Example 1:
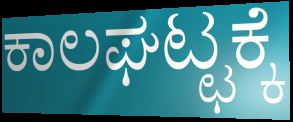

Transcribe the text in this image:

ಕಾಲಘಟ್ಟಕ್ಕೆ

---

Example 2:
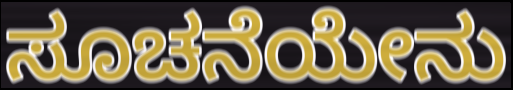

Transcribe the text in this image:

ಸೂಚನೆಯೇನು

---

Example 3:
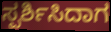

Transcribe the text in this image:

ಸ್ಪರ್ಶಿಸಿದಾಗ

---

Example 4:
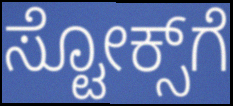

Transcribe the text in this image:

ಸ್ಟೋಕ್ಸ್‌ಗೆ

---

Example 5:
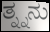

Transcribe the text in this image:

ತ್ನ್ನನು